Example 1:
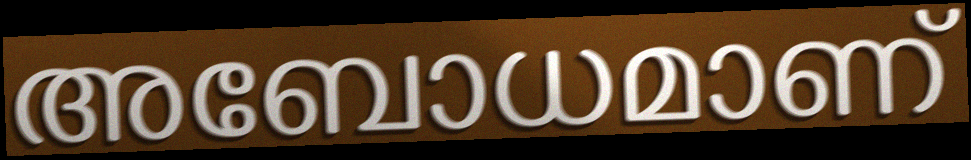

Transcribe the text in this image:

അബോധമാണ്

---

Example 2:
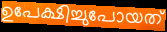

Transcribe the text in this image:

ഉപേക്ഷിച്ചുപോയത്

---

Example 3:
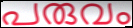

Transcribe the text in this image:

പരുവം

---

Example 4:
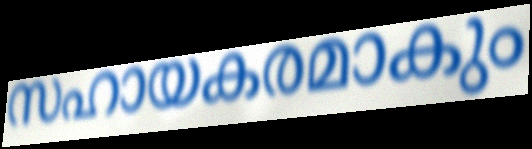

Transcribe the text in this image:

സഹായകരമാകും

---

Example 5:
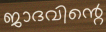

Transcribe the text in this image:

ജാദവിന്റെ